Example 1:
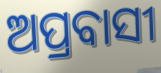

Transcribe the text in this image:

ଅପ୍ରବାସୀ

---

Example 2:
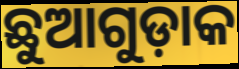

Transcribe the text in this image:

ଛୁଆଗୁଡ଼ାକ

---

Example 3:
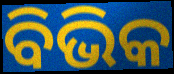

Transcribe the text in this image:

ବିଭିକ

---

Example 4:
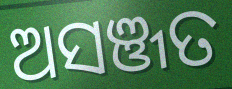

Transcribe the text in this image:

ଅସଞ୍ଜତ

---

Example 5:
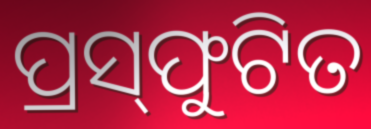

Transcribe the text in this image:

ପ୍ରସ୍‌ଫୁଟିତ